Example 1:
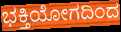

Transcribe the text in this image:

ಭಕ್ತಿಯೋಗದಿಂದ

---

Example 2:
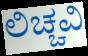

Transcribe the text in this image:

ಲಿಚ್ಚವಿ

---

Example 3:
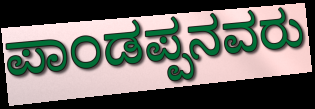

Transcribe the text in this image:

ಪಾಂಡಪ್ಪನವರು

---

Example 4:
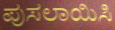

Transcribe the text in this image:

ಪುಸಲಾಯಿಸಿ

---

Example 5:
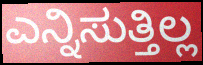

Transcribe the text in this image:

ಎನ್ನಿಸುತ್ತಿಲ್ಲ